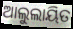
ଆଲୁଲାୟିତ